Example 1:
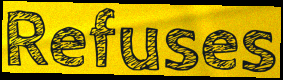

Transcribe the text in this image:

Refuses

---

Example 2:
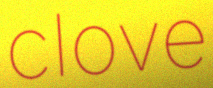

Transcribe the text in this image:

clove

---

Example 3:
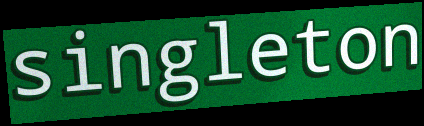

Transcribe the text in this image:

singleton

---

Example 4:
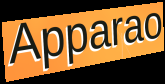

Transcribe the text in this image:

Apparao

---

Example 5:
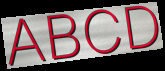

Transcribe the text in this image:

ABCD